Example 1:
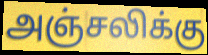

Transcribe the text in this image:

அஞ்சலிக்கு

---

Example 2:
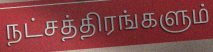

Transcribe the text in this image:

நட்சத்திரங்களும்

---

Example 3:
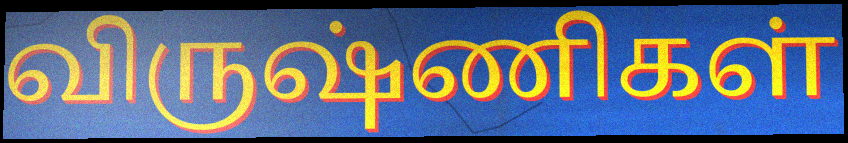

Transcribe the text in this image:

விருஷ்ணிகள்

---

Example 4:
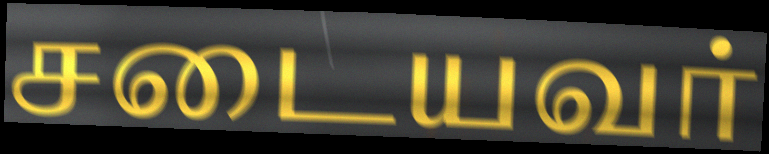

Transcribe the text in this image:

சடையவர்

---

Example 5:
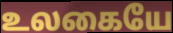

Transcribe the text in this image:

உலகையே